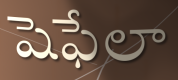
షెఫేలా